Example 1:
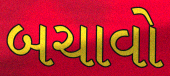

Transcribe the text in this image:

બચાવો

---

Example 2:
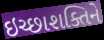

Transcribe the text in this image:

ઇચ્છાશક્તિને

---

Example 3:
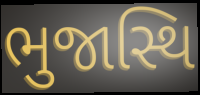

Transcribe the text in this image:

ભુજાસ્થિ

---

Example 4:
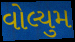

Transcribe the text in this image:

વોલ્યુમ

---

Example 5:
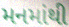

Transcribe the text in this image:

મનમાંથી